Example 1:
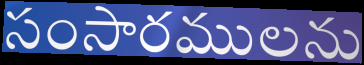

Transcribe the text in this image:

సంసారములను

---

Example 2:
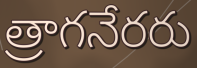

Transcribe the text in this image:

త్రాగనేరరు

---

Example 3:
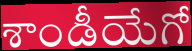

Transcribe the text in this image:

శాండీయేగో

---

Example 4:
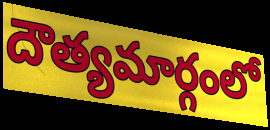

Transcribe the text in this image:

దౌత్యమార్గంలో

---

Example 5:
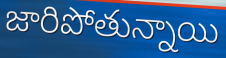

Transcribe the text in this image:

జారిపోతున్నాయి